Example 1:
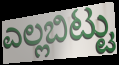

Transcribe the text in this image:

ಎಲ್ಲಬಿಟ್ಟು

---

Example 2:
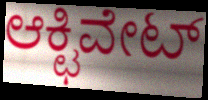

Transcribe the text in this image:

ಆಕ್ಟಿವೇಟ್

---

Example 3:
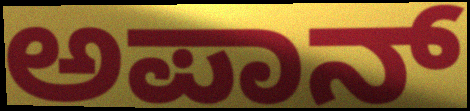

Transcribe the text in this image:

ಅಪಾನ್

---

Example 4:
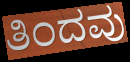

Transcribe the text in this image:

ತಿಂದವು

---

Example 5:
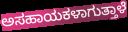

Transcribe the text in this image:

ಅಸಹಾಯಕಳಾಗುತ್ತಾಳೆ